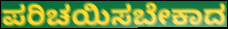
ಪರಿಚಯಿಸಬೇಕಾದ